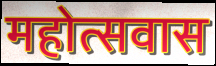
महोत्सवास